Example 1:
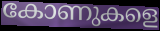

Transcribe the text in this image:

കോണുകളെ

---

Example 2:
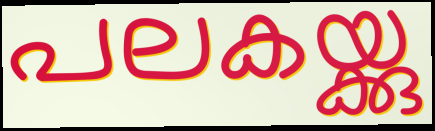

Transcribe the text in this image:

പലകയ്ക്കു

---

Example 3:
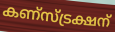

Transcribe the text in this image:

കണ്സ്ട്രക്ഷന്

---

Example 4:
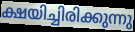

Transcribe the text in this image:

ക്ഷയിച്ചിരിക്കുന്നു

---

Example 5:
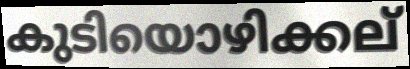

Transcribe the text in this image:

കുടിയൊഴിക്കല്